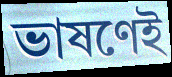
ভাষণেই